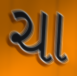
ચા